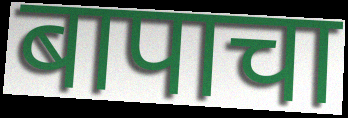
बापाचा